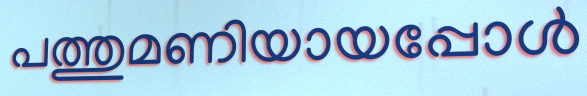
പത്തുമണിയായപ്പോൾ